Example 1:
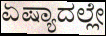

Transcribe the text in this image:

ಏಷ್ಯಾದಲ್ಲೇ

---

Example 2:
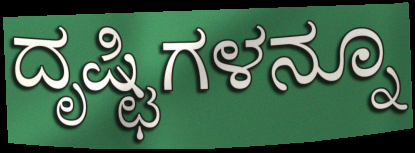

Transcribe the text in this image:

ದೃಷ್ಟಿಗಳನ್ನೂ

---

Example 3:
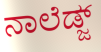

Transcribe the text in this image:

ನಾಲೆಡ್ಜ್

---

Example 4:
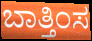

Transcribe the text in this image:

ಬಾತ್ತಿಂಸ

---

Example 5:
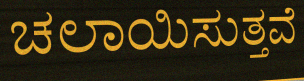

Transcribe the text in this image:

ಚಲಾಯಿಸುತ್ತವೆ